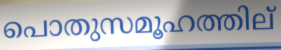
പൊതുസമൂഹത്തില്